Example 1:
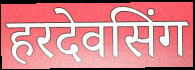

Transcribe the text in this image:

हरदेवसिंग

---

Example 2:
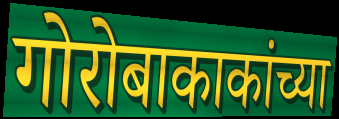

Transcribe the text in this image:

गोरोबाकाकांच्या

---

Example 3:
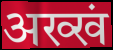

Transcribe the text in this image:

अख्खं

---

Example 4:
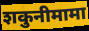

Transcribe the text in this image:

शकुनीमामा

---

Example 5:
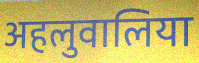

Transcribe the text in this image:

अहलुवालिया